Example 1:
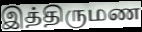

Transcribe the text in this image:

இத்திருமண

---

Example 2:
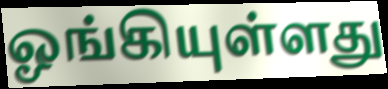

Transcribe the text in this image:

ஓங்கியுள்ளது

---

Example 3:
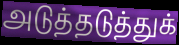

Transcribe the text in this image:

அடுத்தடுத்துக்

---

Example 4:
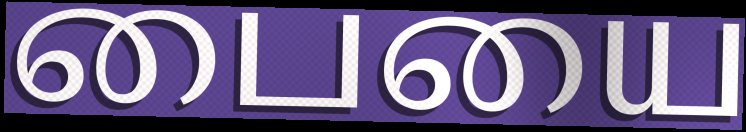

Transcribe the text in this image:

பையை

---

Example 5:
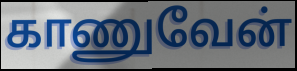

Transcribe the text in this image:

காணுவேன்